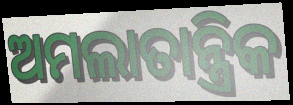
ଅମଲାତାନ୍ତ୍ରିକ